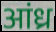
आंध्र